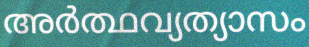
അർത്ഥവ്യത്യാസം